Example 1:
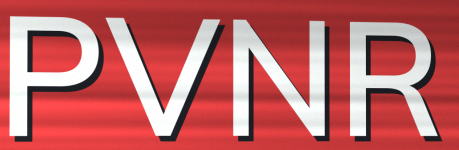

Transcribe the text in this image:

PVNR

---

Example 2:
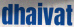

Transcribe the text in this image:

dhaivat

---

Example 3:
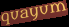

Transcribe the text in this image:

quayum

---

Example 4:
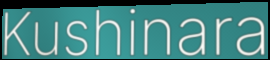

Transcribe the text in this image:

Kushinara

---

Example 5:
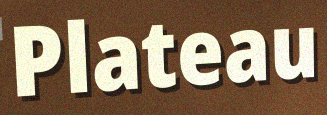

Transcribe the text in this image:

Plateau